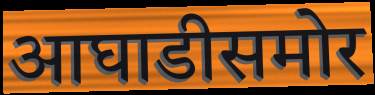
आघाडीसमोर